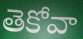
తెకోవా